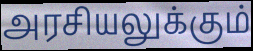
அரசியலுக்கும்